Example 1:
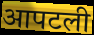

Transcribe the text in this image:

आपटली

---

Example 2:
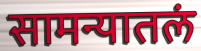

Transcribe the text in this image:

सामन्यातलं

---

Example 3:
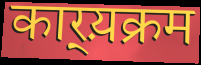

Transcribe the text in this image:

कार्य़क्रम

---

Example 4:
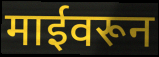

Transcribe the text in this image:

माईवरून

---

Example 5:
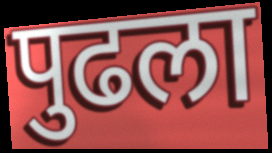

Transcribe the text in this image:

पुढला